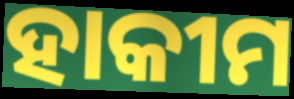
ହାକୀମ